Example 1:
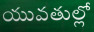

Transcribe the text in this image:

యువతుల్లో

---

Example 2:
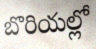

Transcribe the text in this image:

బొరియల్లో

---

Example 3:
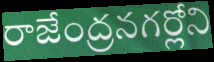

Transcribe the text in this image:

రాజేంద్రనగర్లోని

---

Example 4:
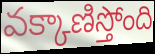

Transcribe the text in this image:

వక్కాణిస్తోంది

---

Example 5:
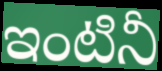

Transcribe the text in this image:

ఇంటినీ